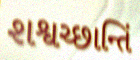
શશ્વચ્છાન્તિં